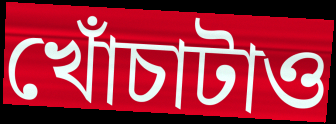
খোঁচাটাও